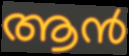
ആൻ